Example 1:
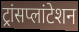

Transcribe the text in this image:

ट्रांसप्लांटेशन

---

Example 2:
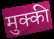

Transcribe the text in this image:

मुक्की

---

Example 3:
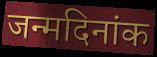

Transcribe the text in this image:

जन्मदिनांक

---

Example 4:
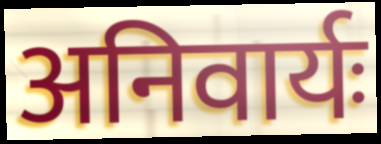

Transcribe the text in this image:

अनिवार्यः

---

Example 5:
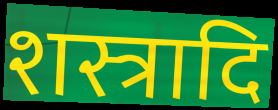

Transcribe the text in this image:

शस्त्रादि